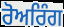
ਰੋਅਰਿੰਗ